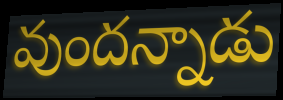
వుందన్నాడు